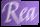
Rea